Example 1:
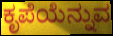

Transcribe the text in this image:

ಕೃಪೆಯೆನ್ನುವ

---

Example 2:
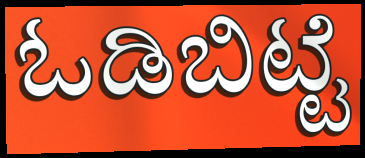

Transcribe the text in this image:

ಓಡಿಬಿಟ್ಟೆ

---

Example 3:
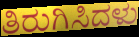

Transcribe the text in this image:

ತಿರುಗಿಸಿದಳು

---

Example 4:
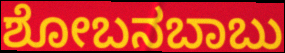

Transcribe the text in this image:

ಶೋಬನಬಾಬು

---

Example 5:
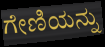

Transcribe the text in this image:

ಗೇಣಿಯನ್ನು